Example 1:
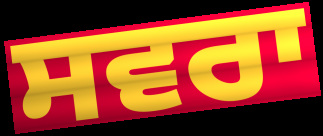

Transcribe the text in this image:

ਸਵਰਾ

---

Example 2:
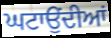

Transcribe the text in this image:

ਘਟਾਉਂਦੀਆਂ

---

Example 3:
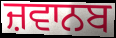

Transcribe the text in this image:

ਜ਼ਵਾਨਬ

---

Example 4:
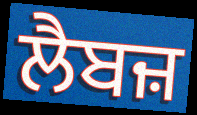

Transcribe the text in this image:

ਲੈਬਜ਼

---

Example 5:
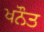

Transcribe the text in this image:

ਖਨੌਤ